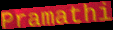
Pramathi